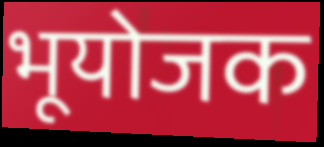
भूयोजक